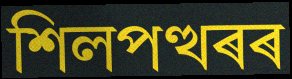
শিলপত্থৰৰ